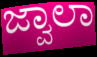
ಜ್ವಾಲಾ